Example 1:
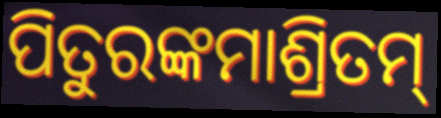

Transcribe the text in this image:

ପିତୁରଙ୍କମାଶ୍ରିତମ୍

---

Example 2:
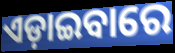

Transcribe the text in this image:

ଏଡ଼ାଇବାରେ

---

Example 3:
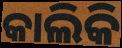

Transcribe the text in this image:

କାଲିକି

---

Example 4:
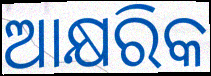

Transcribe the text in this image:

ଆକ୍ଷରିକ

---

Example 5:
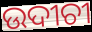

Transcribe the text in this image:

ଉଦୀଚୀ